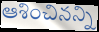
ఆశించినన్ని